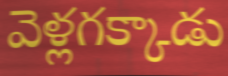
వెళ్లగక్కాడు